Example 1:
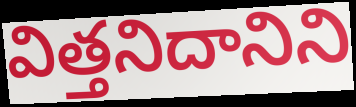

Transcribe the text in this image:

విత్తనిదానిని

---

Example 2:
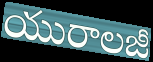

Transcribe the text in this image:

యురాలజీ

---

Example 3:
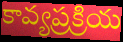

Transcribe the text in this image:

కావ్యప్రక్రియ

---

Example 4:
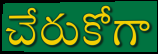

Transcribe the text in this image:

చేరుకోగా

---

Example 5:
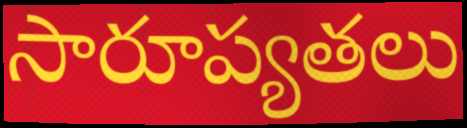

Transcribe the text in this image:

సారూప్యతలు